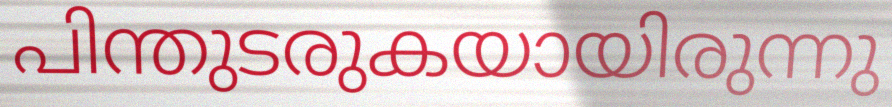
പിന്തുടരുകയായിരുന്നു